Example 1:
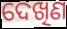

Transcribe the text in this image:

ଦେଖିଣ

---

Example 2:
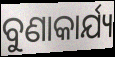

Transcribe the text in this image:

ବୁଣାକାର୍ଯ୍ୟ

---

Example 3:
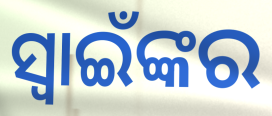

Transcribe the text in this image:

ସ୍ୱାଇଁଙ୍କର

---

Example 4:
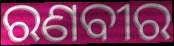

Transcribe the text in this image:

ରଣବୀର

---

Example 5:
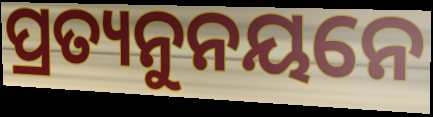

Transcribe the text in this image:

ପ୍ରତ୍ୟନୁନୟନେ